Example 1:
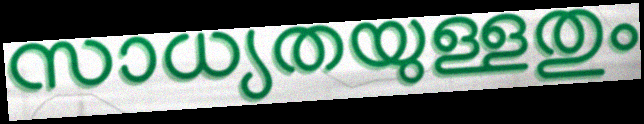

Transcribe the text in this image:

സാധ്യതയുള്ളതും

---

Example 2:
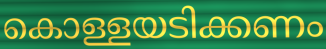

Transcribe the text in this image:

കൊള്ളയടിക്കണം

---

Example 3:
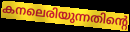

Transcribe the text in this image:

കനലെരിയുന്നതിന്റെ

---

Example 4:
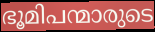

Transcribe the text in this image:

ഭൂമിപന്മാരുടെ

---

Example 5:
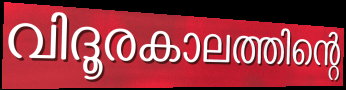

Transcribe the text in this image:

വിദൂരകാലത്തിന്റെ